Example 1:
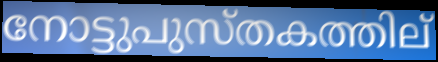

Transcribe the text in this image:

നോട്ടുപുസ്തകത്തില്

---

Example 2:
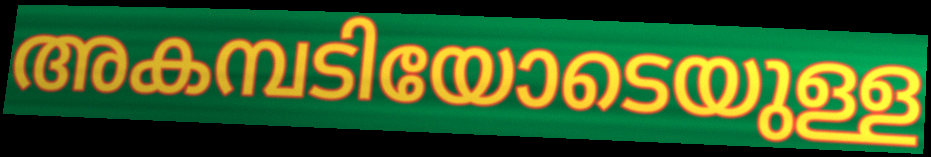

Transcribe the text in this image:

അകമ്പടിയോടെയുള്ള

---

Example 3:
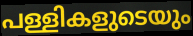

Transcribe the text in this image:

പള്ളികളുടെയും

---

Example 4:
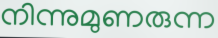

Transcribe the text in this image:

നിന്നുമുണരുന്ന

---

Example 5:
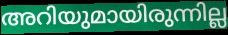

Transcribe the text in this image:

അറിയുമായിരുന്നില്ല